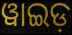
ୱାଇଡ଼